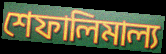
শেফালিমাল্য